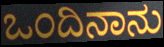
ಒಂದಿನಾನು